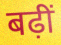
बढ़ीं